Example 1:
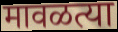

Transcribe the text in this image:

मावळत्या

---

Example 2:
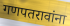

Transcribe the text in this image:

गणपतरावांना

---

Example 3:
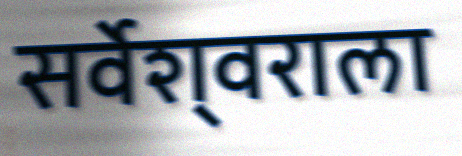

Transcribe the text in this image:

सर्वेश्वराला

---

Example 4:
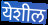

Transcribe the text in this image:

येशील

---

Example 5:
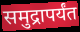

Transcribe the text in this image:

समुद्रापर्यंत